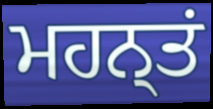
ਮਹਨ੍ਤਂ